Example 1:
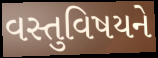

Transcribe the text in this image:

વસ્તુવિષયને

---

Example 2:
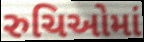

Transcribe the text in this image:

રુચિઓમાં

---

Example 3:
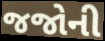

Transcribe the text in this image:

જજોની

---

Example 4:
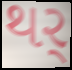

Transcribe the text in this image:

થર્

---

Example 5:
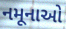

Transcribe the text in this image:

નમૂનાઓ